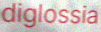
diglossia